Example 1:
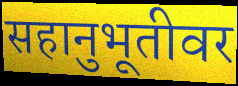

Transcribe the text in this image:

सहानुभूतीवर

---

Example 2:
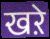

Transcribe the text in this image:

खऱे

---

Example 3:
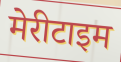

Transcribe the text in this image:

मेरीटाइम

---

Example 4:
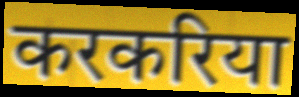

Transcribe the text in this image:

करकरिया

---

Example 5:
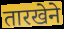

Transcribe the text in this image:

तारखेने